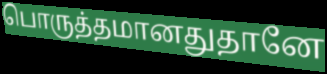
பொருத்தமானதுதானே